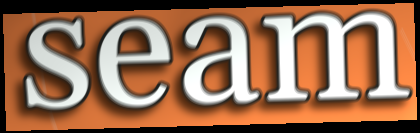
seam